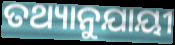
ତଥ୍ୟାନୁଯାୟୀ